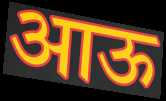
आऊ